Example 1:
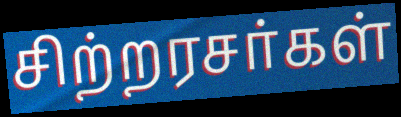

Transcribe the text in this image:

சிற்றரசர்கள்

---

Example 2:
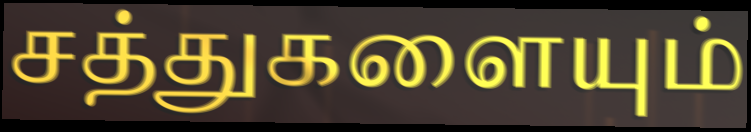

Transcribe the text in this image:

சத்துகளையும்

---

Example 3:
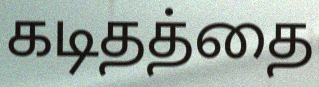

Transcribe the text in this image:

கடிதத்தை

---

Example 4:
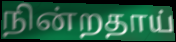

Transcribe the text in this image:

நின்றதாய்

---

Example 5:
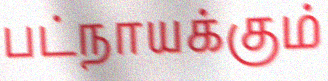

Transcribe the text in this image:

பட்நாயக்கும்